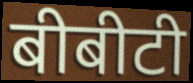
बीबीटी